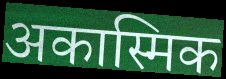
अकास्मिक